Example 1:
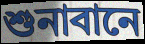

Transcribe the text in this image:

শুনাবানে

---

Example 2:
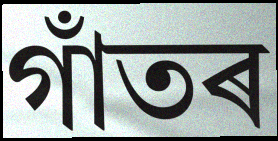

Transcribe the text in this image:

গাঁতৰ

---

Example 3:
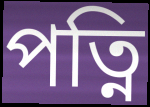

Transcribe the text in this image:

পত্নি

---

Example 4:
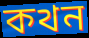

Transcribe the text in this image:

কথন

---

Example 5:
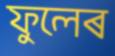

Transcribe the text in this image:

ফুলেৰ